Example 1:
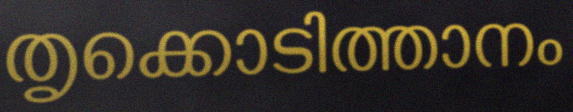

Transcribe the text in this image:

തൃക്കൊടിത്താനം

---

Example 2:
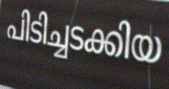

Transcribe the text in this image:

പിടിച്ചടക്കിയ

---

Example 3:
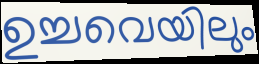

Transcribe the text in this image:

ഉച്ചവെയിലും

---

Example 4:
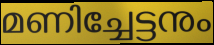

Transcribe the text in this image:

മണിച്ചേട്ടനും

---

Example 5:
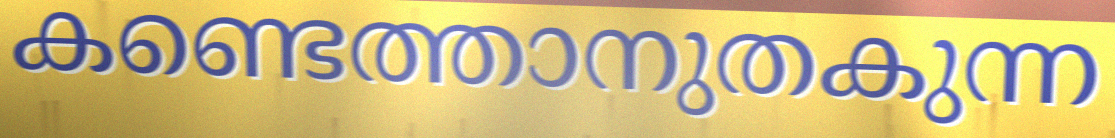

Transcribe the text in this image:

കണ്ടെത്താനുതകുന്ന